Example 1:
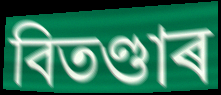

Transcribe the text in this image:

বিতণ্ডাৰ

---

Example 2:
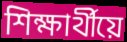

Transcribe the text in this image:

শিক্ষাৰ্থীয়ে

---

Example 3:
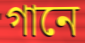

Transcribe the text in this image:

গানে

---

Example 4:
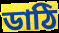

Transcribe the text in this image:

ডাঠি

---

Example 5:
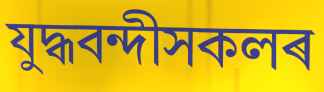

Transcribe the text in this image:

যুদ্ধবন্দীসকলৰ